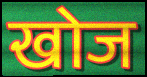
खोज